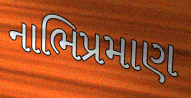
નાભિપ્રમાણ